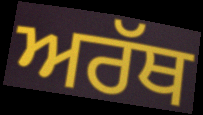
ਅਰੱਥ